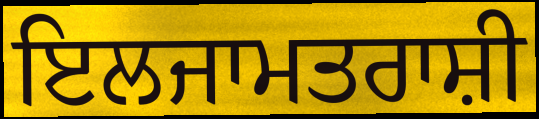
ਇਲਜਾਮਤਰਾਸ਼ੀ